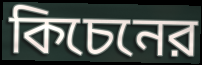
কিচেনের